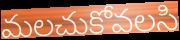
మలచుకోవలసి